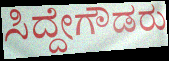
ಸಿದ್ದೇಗೌಡರು